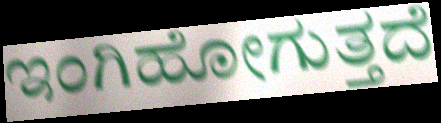
ಇಂಗಿಹೋಗುತ್ತದೆ